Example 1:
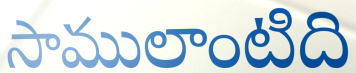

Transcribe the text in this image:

సాములాంటిది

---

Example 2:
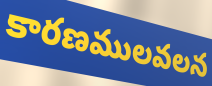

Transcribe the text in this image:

కారణములవలన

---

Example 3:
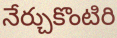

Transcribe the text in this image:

నేర్చుకొంటిరి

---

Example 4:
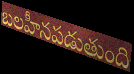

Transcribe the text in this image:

బలహీనపడుతుంది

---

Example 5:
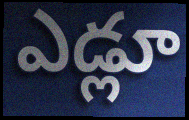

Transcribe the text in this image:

ఎడ్లూ